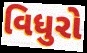
વિધુરો